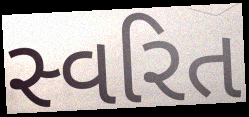
સ્વરિત